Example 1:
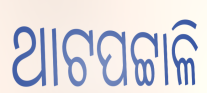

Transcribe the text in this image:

ଥାଟପଟ୍ଟାଳି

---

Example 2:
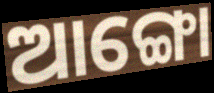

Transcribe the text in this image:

ଆଙ୍ଗୋ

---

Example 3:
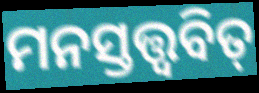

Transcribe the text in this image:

ମନସ୍ତତ୍ତ୍ଵବିତ୍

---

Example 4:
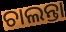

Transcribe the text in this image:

ଚାଲନ୍ତା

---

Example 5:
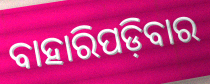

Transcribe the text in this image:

ବାହାରିପଡ଼ିବାର